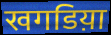
खगडिय़ा